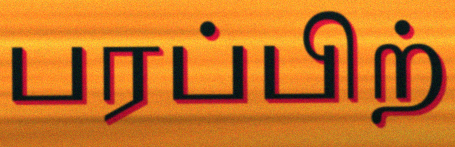
பரப்பிற்